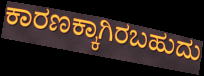
ಕಾರಣಕ್ಕಾಗಿರಬಹುದು